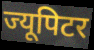
ज्यूपिटर